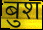
बुश